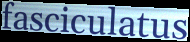
fasciculatus